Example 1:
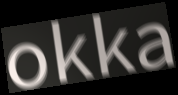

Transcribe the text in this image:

okka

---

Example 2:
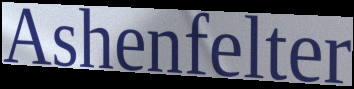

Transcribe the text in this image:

Ashenfelter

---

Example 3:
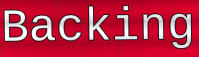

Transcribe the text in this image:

Backing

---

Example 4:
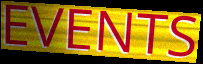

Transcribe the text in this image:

EVENTS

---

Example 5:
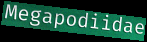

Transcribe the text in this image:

Megapodiidae